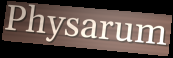
Physarum